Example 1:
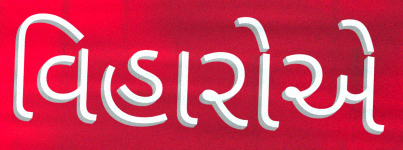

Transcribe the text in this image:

વિહારોએ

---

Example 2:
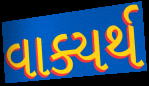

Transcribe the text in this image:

વાક્યર્થ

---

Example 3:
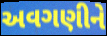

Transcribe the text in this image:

અવગણીને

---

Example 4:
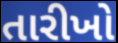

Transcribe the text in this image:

તારીખો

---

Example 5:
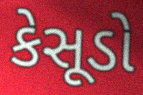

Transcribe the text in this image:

કેસૂડો